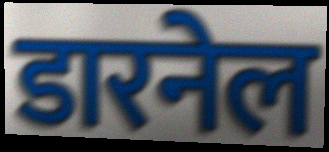
डारनेल